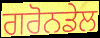
ਗਰੋਨਡੇਲ